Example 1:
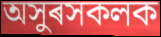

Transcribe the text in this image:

অসুৰসকলক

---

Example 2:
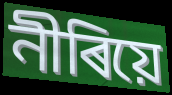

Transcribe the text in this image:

নীৰিয়ে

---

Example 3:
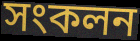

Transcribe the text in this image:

সংকলন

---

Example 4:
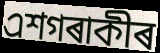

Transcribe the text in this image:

এশগৰাকীৰ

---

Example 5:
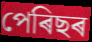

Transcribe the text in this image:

পেৰিছৰ